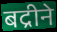
बद्रीने